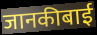
जानकीबाई